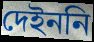
দেইননি